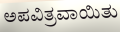
ಅಪವಿತ್ರವಾಯಿತು